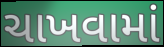
ચાખવામાં